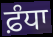
ਫ਼ੰਧਾ